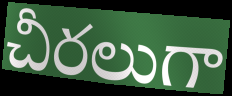
చీరలుగా